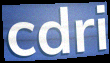
cdri